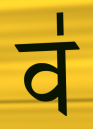
व॑